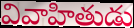
వివాహితుడు